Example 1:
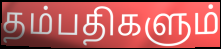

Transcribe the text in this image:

தம்பதிகளும்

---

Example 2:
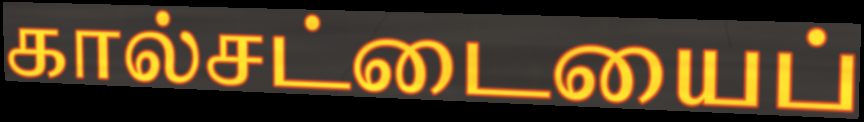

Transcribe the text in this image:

கால்சட்டையைப்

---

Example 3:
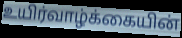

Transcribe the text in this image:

உயிர்வாழ்க்கையின்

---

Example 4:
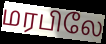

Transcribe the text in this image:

மரபிலே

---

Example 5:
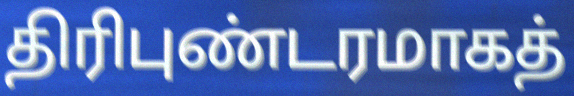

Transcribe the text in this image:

திரிபுண்டரமாகத்